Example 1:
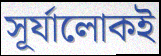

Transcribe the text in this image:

সূর্যালোকই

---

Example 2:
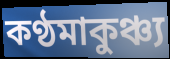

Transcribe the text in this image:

কণ্ঠমাকুঞ্চ্য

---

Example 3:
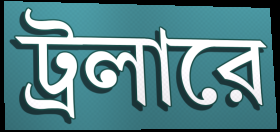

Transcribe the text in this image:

ট্রলারে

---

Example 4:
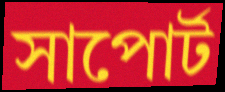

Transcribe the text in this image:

সাপোর্ট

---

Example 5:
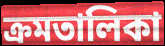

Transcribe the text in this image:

ক্রমতালিকা